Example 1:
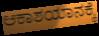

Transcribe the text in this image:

ಆಕಾಶಯಾನಕ್ಕೆ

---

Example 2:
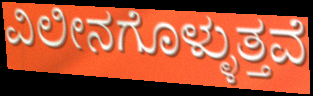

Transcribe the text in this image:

ವಿಲೀನಗೊಳ್ಳುತ್ತವೆ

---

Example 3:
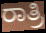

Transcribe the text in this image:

ರಾತ್ರಿ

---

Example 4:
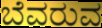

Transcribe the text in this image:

ಬೆವರುವ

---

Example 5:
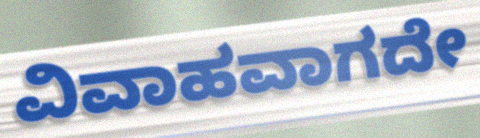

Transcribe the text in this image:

ವಿವಾಹವಾಗದೇ